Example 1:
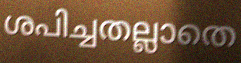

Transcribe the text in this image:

ശപിച്ചതല്ലാതെ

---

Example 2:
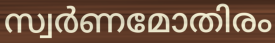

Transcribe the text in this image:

സ്വർണമോതിരം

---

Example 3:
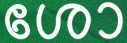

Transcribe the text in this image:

ശോ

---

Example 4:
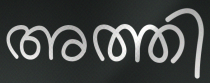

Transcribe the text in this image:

അത്തി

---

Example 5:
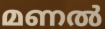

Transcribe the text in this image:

മണൽ